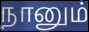
நானும்